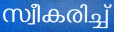
സ്വീകരിച്ച്